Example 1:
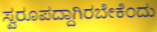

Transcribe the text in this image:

ಸ್ವರೂಪದ್ದಾಗಿರಬೇಕೆಂದು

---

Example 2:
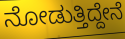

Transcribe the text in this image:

ನೋಡುತ್ತಿದ್ದೇನೆ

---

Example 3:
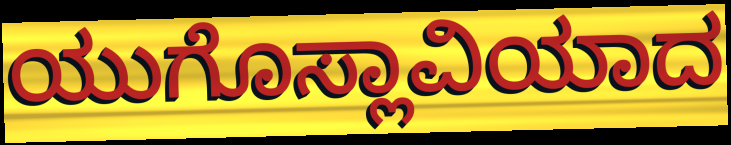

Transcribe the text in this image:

ಯುಗೊಸ್ಲಾವಿಯಾದ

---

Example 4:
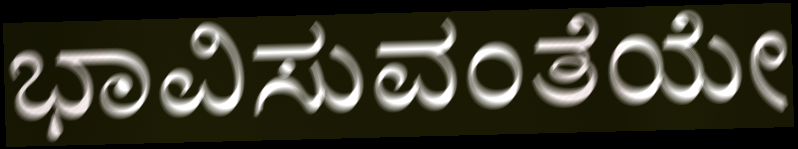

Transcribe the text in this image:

ಭಾವಿಸುವಂತೆಯೇ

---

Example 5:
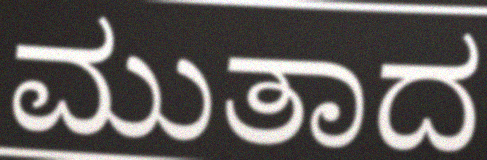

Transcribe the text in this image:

ಮುತಾದ